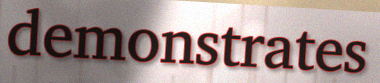
demonstrates